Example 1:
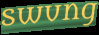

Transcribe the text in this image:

swung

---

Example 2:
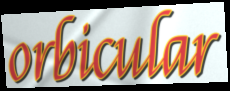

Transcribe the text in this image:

orbicular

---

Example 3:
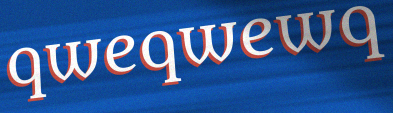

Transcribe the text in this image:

qweqwewq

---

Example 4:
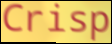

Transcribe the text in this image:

Crisp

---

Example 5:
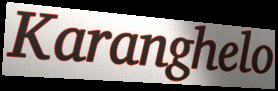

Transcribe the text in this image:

Karanghelo